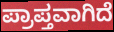
ಪ್ರಾಪ್ತವಾಗಿದೆ